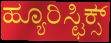
ಹ್ಯೂರಿಸ್ಟಿಕ್ಸ್